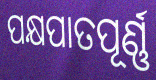
ପକ୍ଷପାତପୂର୍ଣ୍ଣ